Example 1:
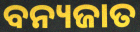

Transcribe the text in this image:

ବନ୍ୟଜାତ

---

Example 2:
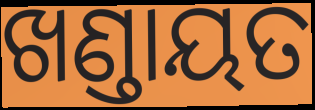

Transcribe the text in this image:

ଖଣ୍ଡାୟତ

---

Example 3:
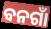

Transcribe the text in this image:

ବନଗାଁ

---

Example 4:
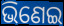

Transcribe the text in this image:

ଭିଣେଇ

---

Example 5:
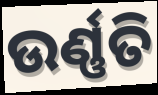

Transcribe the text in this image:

ଉର୍ଣ୍ଣତି